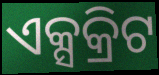
ଏକ୍ସକ୍ରିଟ